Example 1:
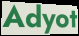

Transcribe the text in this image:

Adyot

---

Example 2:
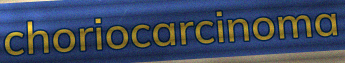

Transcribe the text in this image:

choriocarcinoma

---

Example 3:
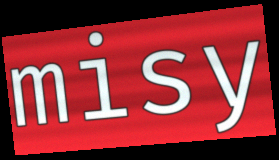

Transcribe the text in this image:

misy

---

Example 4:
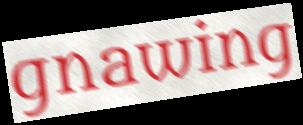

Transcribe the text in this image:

gnawing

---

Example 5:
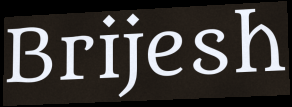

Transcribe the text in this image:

Brijesh